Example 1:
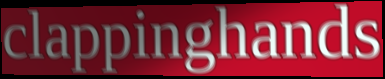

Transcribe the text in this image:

clappinghands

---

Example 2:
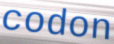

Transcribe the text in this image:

codon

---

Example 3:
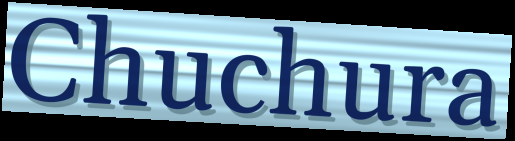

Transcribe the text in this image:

Chuchura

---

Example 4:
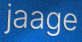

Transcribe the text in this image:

jaage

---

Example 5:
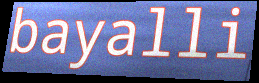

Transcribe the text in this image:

bayalli